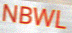
NBWL